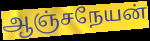
ஆஞ்சநேயன்